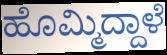
ಹೊಮ್ಮಿದ್ದಾಳೆ